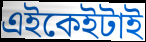
এইকেইটাই